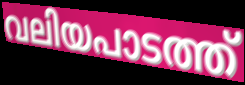
വലിയപാടത്ത്